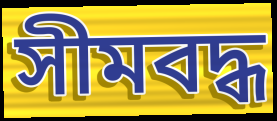
সীমবদ্ধ